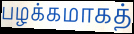
பழக்கமாகத்